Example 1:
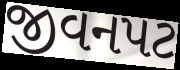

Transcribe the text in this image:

જીવનપટ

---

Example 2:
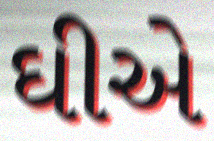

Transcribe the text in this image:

ઘીએ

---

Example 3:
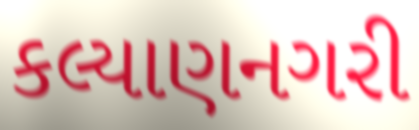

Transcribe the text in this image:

કલ્યાણનગરી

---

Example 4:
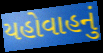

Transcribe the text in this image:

યહોવાહનું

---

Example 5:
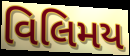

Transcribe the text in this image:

વિલિમય